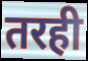
तरही